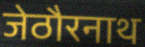
जेठौरनाथ